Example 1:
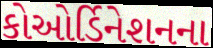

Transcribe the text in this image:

કોઓર્ડિનેશનના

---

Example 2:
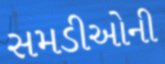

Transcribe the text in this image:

સમડીઓની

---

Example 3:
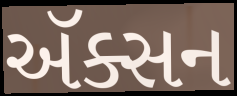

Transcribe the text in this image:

ઍક્સન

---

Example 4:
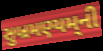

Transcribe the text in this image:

સુબ્રમણ્યમ્‌ની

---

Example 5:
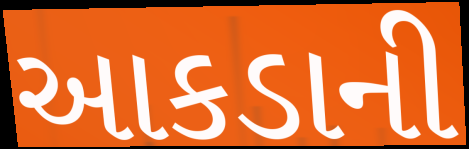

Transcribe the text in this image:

આકડાની